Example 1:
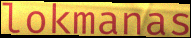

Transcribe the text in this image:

lokmanas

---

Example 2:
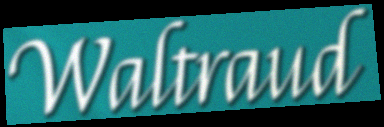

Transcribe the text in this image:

Waltraud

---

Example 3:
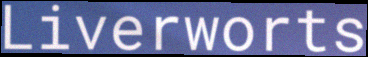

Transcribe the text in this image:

Liverworts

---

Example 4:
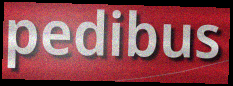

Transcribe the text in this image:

pedibus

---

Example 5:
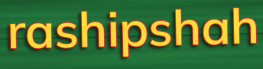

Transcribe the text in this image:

rashipshah